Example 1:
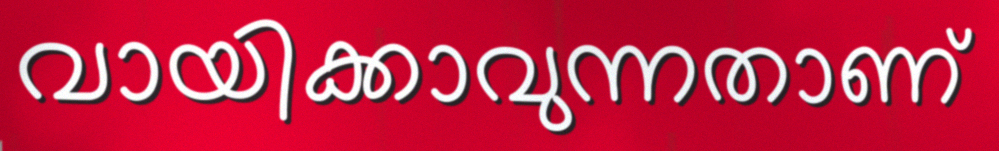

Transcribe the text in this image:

വായിക്കാവുന്നതാണ്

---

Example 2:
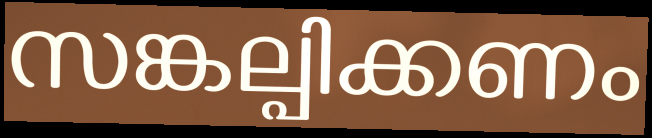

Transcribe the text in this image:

സങ്കല്പിക്കണം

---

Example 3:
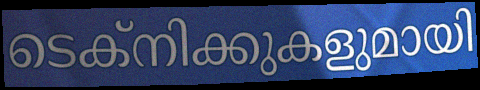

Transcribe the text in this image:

ടെക്നിക്കുകളുമായി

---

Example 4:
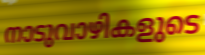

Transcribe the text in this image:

നാടുവാഴികളുടെ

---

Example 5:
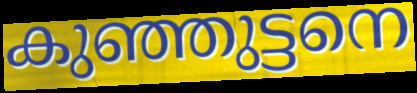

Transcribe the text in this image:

കുഞ്ഞുട്ടനെ